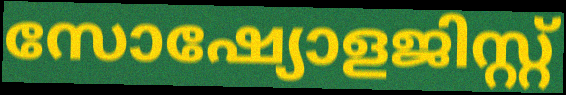
സോഷ്യോളജിസ്റ്റ്